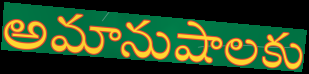
అమానుషాలకు